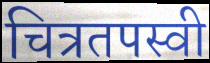
चित्रतपस्वी